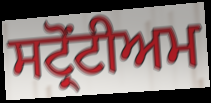
ਸਟ੍ਰੋਂਟੀਅਮ